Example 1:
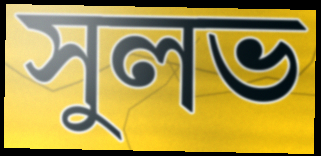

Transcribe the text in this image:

সুলভ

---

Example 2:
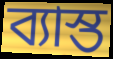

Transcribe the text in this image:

ব্যাস্ত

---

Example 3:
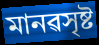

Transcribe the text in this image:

মানৱসৃষ্ট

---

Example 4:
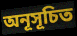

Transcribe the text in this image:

অনূসূচিত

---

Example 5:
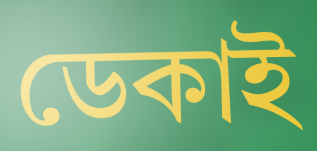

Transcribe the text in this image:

ডেকাই